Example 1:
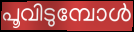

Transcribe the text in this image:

പൂവിടുമ്പോൾ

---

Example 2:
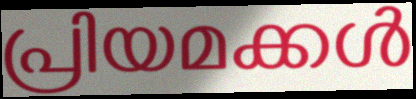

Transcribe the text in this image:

പ്രിയമക്കൾ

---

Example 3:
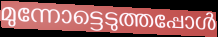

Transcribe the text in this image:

മുന്നോട്ടെടുത്തപ്പോൾ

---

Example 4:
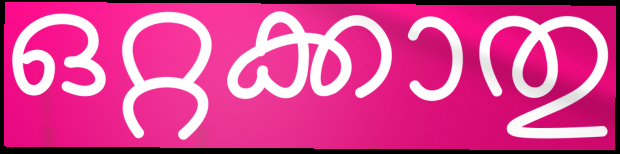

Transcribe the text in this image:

ഒറ്റക്കാതു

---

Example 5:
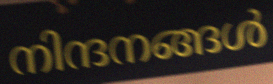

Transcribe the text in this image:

നിന്ദനങ്ങൾ